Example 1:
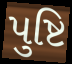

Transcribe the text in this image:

પુષ્ટિ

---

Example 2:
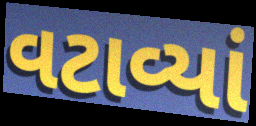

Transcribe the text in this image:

વટાવ્યાં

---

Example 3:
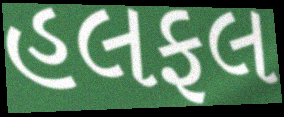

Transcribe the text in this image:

હલફલ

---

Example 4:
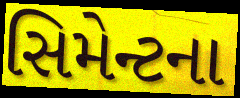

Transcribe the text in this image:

સિમેન્ટના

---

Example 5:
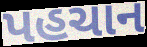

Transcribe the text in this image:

પહચાન